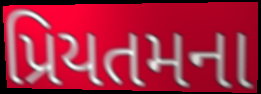
પ્રિયતમના